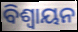
ବିଶ୍ଵାୟନ